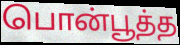
பொன்பூத்த